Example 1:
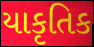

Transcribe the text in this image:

યાકૃતિક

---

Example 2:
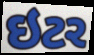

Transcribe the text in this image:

ઇટર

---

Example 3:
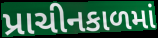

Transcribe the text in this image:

પ્રાચીનકાળમાં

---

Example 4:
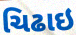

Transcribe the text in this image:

ચિઢાઇ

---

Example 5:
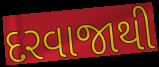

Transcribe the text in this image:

દરવાજાથી